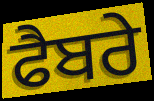
ਫੈਬਰੇ